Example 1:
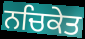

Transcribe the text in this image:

ਨਚਿਕੇਤ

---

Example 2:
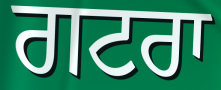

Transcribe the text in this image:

ਗਟਰਾ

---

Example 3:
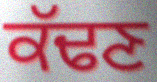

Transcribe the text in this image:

ਕੱਢਣ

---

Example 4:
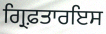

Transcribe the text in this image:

ਗ੍ਰਿਫ਼ਤਾਰਇਸ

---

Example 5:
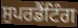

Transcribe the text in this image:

ਸੁਪਰਡੈਂਟਿੰਗ